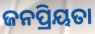
ଜନପ୍ରିୟତା